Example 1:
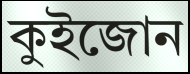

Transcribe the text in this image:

কুইজোন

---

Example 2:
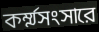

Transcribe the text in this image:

কর্ম্মসংসারে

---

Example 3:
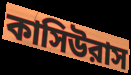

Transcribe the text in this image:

কাসিউরাস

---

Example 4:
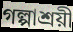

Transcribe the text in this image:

গল্পাশ্রয়ী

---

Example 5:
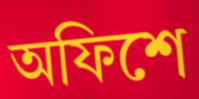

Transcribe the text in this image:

অফিশে